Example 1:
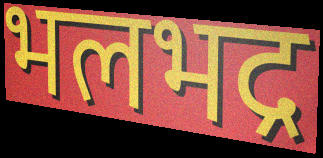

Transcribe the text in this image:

भलभद्र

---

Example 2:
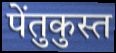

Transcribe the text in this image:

पेंतुकुस्त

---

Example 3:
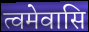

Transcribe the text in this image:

त्वमेवासि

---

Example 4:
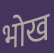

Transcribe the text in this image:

भोख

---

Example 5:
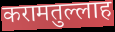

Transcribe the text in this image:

करामतुल्लाह